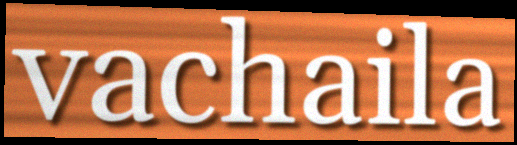
vachaila